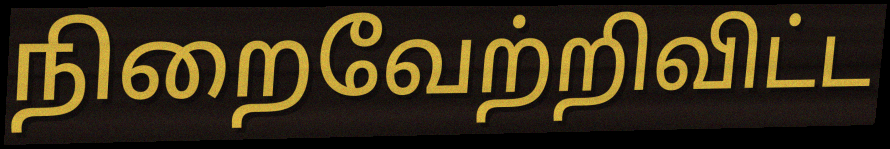
நிறைவேற்றிவிட்ட